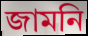
জামনি